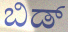
ಬಿಡ್